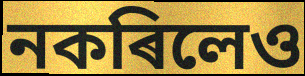
নকৰিলেও